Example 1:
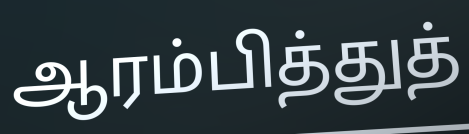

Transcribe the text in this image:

ஆரம்பித்துத்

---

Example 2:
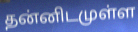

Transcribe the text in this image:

தன்னிடமுள்ள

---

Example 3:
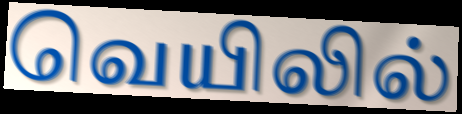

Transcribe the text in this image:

வெயிலில்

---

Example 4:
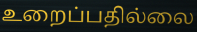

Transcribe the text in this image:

உறைப்பதில்லை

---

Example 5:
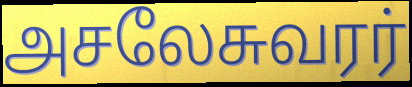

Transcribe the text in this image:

அசலேசுவரர்